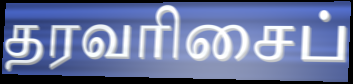
தரவரிசைப்